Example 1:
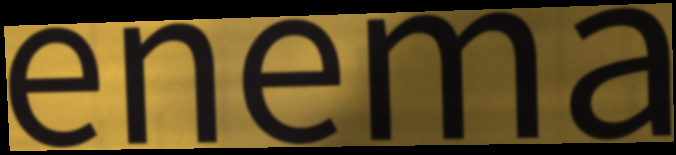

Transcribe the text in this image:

enema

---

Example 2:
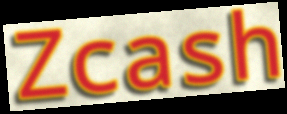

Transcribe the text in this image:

Zcash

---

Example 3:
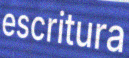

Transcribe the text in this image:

escritura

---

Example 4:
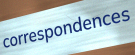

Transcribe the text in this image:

correspondences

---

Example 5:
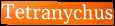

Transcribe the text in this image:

Tetranychus